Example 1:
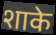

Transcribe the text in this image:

शाके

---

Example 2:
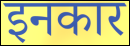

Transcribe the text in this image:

इनकार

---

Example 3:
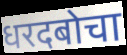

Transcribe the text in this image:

धरदबोचा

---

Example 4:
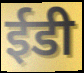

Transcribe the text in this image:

ईडी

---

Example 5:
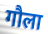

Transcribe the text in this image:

गौला